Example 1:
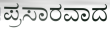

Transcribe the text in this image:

ಪ್ರಸಾರವಾದ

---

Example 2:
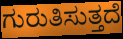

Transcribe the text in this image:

ಗುರುತಿಸುತ್ತದೆ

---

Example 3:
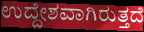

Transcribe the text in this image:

ಉದ್ದೇಶವಾಗಿರುತ್ತದೆ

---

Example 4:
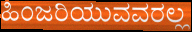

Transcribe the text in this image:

ಹಿಂಜರಿಯುವವರಲ್ಲ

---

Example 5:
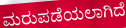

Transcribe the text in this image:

ಮರುಪಡೆಯಲಾಗಿದೆ